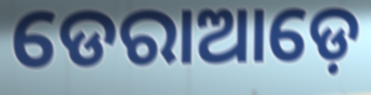
ଡେରାଆଡ଼େ